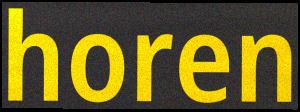
horen